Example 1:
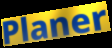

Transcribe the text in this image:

Planer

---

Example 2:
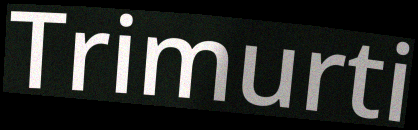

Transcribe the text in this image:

Trimurti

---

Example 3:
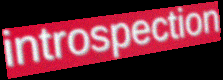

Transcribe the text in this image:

introspection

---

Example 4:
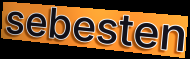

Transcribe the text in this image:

sebesten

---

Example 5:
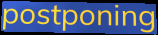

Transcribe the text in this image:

postponing